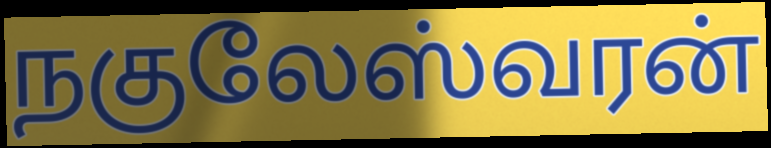
நகுலேஸ்வரன்